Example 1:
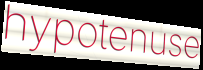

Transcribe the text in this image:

hypotenuse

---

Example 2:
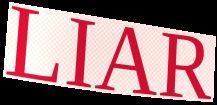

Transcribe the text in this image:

LIAR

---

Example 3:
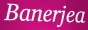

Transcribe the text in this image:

Banerjea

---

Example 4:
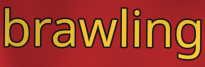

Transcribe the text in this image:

brawling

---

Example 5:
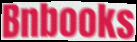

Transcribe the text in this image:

Bnbooks